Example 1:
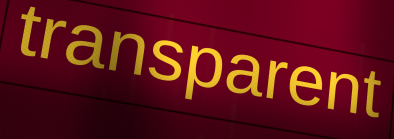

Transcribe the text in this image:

transparent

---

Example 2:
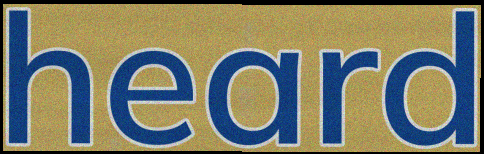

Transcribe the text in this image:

heard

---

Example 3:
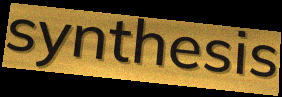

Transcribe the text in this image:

synthesis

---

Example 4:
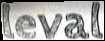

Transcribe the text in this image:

leval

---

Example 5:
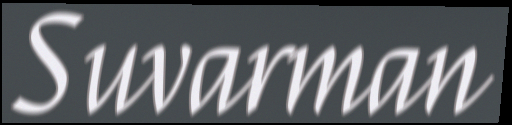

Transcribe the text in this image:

Suvarman